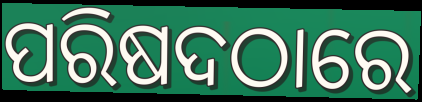
ପରିଷଦଠାରେ